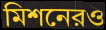
মিশনেরও